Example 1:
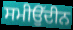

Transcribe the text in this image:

ਸਮੀਉੱਦੀਨ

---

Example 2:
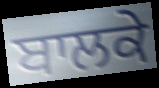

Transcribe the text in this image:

ਬਾਲਕੇ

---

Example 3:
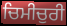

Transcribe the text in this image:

ਚਿਮੀਚੁਰੀ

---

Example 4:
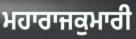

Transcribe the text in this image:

ਮਹਾਰਾਜਕੁਮਾਰੀ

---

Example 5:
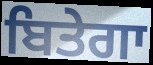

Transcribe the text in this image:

ਬਿਤੇਗਾ